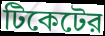
টিকেটের